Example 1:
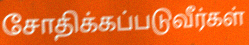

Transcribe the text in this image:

சோதிக்கப்படுவீர்கள்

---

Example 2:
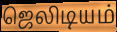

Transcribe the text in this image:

ஜெலிடியம்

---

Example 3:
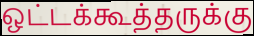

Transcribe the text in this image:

ஒட்டக்கூத்தருக்கு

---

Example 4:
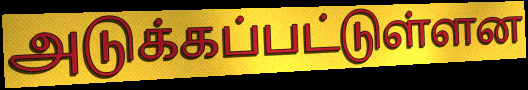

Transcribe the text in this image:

அடுக்கப்பட்டுள்ளன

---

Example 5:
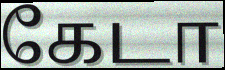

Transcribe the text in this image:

கேடா